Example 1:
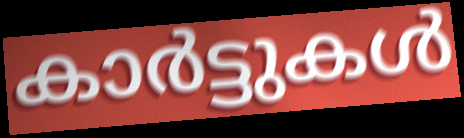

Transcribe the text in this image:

കാർട്ടുകൾ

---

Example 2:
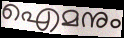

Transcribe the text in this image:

ഐമനും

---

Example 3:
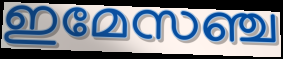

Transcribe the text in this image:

ഇമേസഞ്ച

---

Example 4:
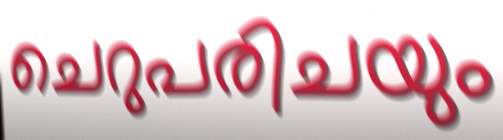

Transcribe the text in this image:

ചെറുപരിചയും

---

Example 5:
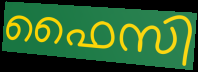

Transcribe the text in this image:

ഫൈസി